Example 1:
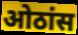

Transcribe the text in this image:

ओठांस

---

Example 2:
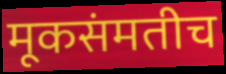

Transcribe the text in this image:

मूकसंमतीच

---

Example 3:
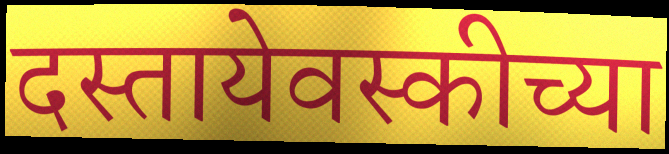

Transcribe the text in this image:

दस्तायेवस्कीच्या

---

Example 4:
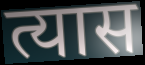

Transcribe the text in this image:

त्‍यास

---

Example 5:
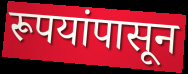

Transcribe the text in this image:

रूपयांपासून